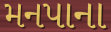
મનપાના